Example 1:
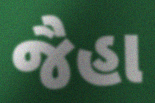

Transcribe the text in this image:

જૈહા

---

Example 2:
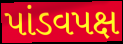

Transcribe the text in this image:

પાંડવપક્ષ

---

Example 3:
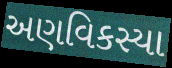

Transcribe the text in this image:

અણવિકસ્યા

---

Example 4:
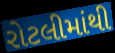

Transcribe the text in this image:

રોટલીમાંથી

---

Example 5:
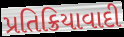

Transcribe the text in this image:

પ્રતિક્રિયાવાદી